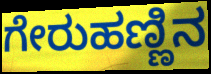
ಗೇರುಹಣ್ಣಿನ